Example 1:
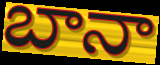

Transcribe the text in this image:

బానా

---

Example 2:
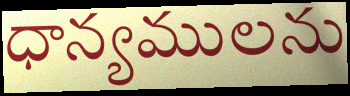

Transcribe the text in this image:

ధాన్యములను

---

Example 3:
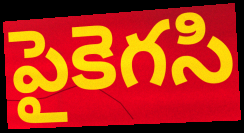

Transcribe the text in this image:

పైకెగసి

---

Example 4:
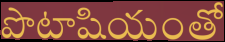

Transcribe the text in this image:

పొటాషియంతో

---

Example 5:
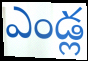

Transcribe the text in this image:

ఎండ్ల